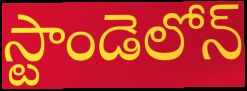
స్టాండెలోన్